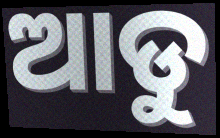
ଆଡୁ